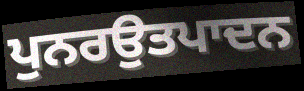
ਪੁਨਰਉਤਪਾਦਨ